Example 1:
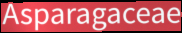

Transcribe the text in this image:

Asparagaceae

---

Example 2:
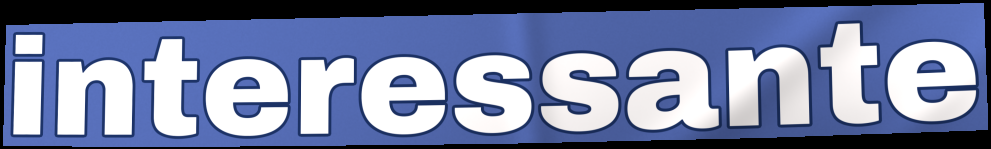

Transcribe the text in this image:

interessante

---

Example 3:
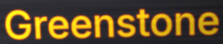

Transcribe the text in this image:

Greenstone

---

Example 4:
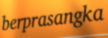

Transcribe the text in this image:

berprasangka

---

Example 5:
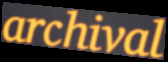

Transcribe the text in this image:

archival